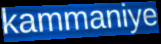
kammaniye